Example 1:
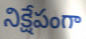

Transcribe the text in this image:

నిక్షేపంగా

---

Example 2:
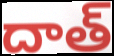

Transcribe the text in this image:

దాత్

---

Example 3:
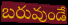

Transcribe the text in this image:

బరువుండే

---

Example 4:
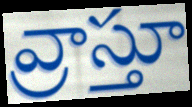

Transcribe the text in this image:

వ్రాస్తూ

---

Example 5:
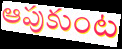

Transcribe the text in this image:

ఆపుకుంట